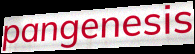
pangenesis